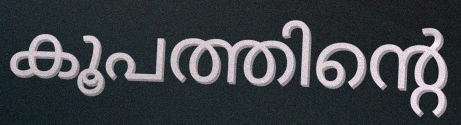
കൂപത്തിന്റെ